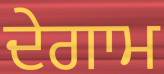
ਦੇਗਾਮ